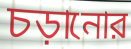
চড়ানোর